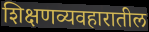
शिक्षणव्यवहारातील